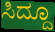
ಸಿದ್ದೂ